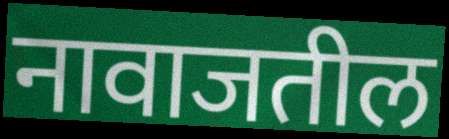
नावाजतील